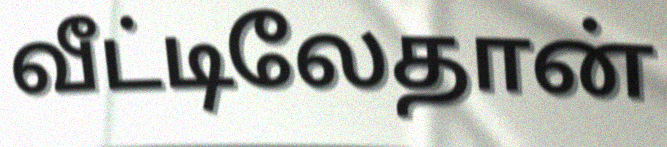
வீட்டிலேதான்